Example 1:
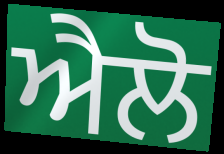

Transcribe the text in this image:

ਐਲੋ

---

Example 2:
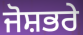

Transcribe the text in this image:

ਜੋਸ਼ਭਰੇ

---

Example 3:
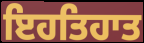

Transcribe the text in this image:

ਇਹਤਿਹਾਤ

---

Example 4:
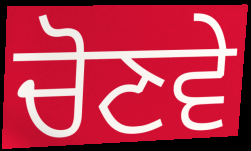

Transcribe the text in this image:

ਚੋਣਵੇ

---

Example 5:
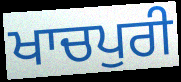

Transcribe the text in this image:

ਖਾਚਪੁਰੀ